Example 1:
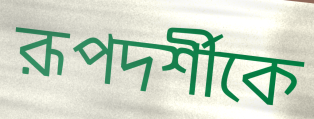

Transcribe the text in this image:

রূপদর্শীকে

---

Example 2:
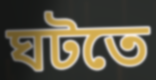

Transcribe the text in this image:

ঘটতে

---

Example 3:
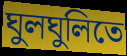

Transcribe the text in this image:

ঘুলঘুলিতে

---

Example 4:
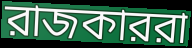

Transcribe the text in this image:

রাজকাররা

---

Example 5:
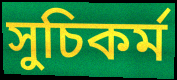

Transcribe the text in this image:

সুচিকর্ম